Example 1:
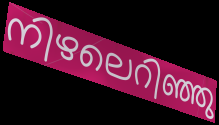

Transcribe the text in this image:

നിഴലെറിഞ്ഞു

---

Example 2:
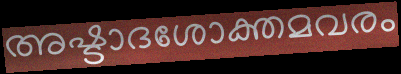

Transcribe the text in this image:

അഷ്ടാദശോക്തമവരം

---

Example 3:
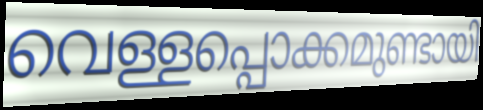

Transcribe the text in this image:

വെള്ളപ്പൊക്കമുണ്ടായി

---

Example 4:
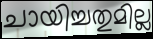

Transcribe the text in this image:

ചായിച്ചതുമില്ല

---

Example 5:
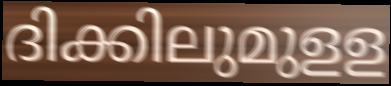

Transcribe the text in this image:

ദിക്കിലുമുളള